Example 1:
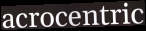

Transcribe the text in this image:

acrocentric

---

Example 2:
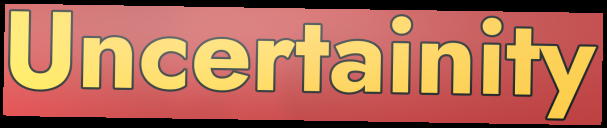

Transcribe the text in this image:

Uncertainity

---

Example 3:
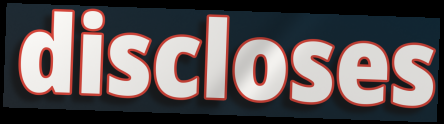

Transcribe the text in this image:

discloses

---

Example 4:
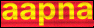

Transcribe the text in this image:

aapna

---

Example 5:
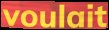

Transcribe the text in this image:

voulait